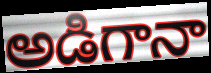
అడిగానా